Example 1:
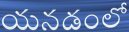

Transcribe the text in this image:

యనడంలో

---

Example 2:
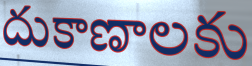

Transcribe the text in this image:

దుకాణాలకు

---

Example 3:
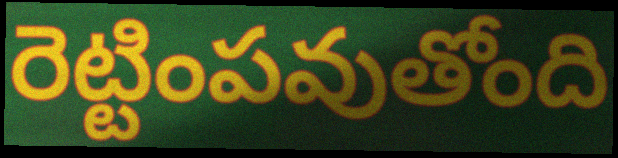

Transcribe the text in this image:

రెట్టింపవుతోంది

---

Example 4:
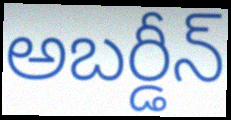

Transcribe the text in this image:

అబర్డీన్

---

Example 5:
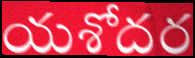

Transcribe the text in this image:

యశోదర